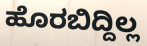
ಹೊರಬಿದ್ದಿಲ್ಲ